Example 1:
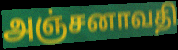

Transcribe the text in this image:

அஞ்சனாவதி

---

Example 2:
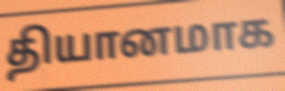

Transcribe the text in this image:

தியானமாக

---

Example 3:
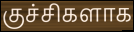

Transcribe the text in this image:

குச்சிகளாக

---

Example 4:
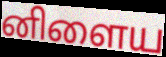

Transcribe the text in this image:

னிளைய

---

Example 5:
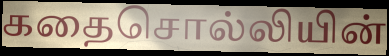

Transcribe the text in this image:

கதைசொல்லியின்